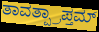
ತಾವತ್ಪ್ರಾಪ್ತಮ್